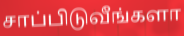
சாப்பிடுவீங்களா